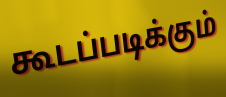
கூடப்படிக்கும்